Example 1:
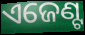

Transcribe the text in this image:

ଏଜେଣ୍ଟ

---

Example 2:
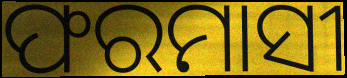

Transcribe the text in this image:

ଫରମାସୀ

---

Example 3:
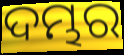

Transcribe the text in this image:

ଦମ୍ଭର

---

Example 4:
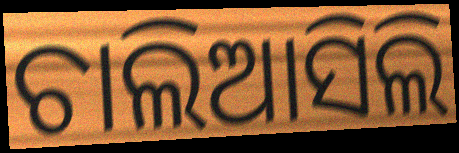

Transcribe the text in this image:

ଚାଲିଆସିଲି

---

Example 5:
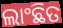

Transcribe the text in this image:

ଲାଂଛିତ